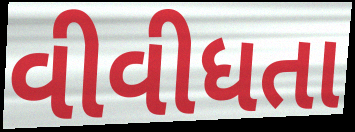
વીવીધતા